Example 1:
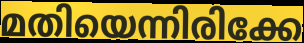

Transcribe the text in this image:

മതിയെന്നിരിക്കേ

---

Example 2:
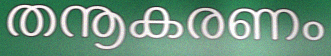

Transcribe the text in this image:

തനൂകരണം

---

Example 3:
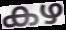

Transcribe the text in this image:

കഴ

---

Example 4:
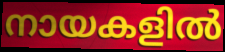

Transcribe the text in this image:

നായകളിൽ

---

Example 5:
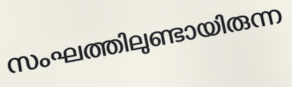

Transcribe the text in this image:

സംഘത്തിലുണ്ടായിരുന്ന